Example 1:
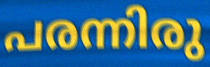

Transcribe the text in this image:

പരന്നിരു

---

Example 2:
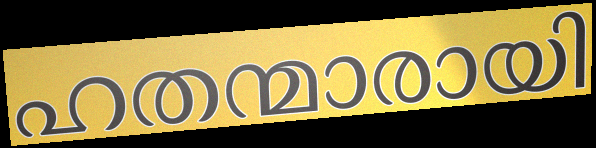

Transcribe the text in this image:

ഹതന്മാരായി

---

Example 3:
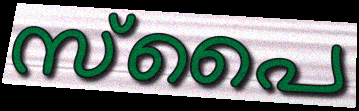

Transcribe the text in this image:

സ്പൈ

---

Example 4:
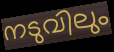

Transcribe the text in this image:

നടുവിലും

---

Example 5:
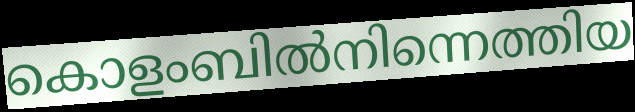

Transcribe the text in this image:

കൊളംബിൽനിന്നെത്തിയ